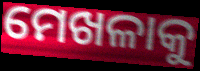
ମେଖଳାକୁ